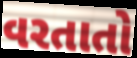
વરતાતો